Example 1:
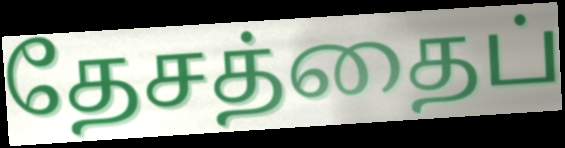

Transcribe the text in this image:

தேசத்தைப்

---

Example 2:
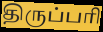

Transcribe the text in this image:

திருப்பரி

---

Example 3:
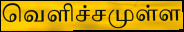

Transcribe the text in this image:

வெளிச்சமுள்ள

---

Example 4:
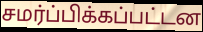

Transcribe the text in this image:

சமர்ப்பிக்கப்பட்டன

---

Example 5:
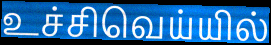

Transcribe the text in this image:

உச்சிவெய்யில்